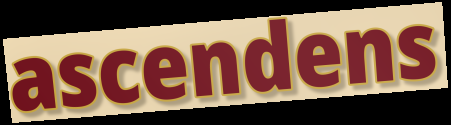
ascendens